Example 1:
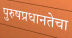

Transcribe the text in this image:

पुरुषप्रधानतेचा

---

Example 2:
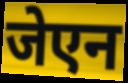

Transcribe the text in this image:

जेएन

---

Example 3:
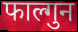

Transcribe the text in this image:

फाल्गुन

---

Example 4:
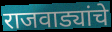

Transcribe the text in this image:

राजवाड्यांचे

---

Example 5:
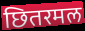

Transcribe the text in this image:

छितरमल